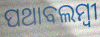
ପଥାବଲମ୍ବୀ